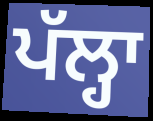
ਪੱਲ੍ਹਾ